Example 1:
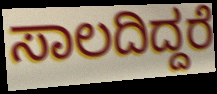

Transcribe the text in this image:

ಸಾಲದಿದ್ದರೆ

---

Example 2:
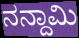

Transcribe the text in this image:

ನನ್ದಾಮಿ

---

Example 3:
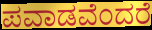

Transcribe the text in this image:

ಪವಾಡವೆಂದರೆ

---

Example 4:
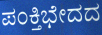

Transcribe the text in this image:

ಪಂಕ್ತಿಭೇದದ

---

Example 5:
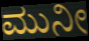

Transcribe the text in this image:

ಮುನೀ